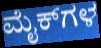
ಮೈಕ್‌ಗಳ